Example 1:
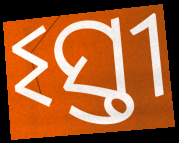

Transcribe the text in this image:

ଽସ୍ତୀ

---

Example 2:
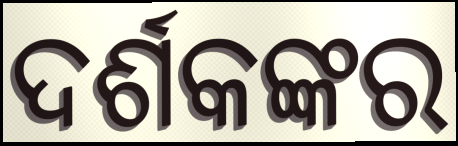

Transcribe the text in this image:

ଦର୍ଶକଙ୍କର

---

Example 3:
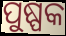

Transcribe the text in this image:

ପୁଷ୍ପକ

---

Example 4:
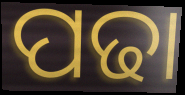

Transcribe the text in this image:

ପଢା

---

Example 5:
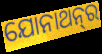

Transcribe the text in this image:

ଯୋନାଥନ୍‍ର